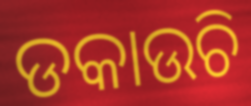
ଡକାଉଚି